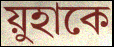
য়ুহাকে